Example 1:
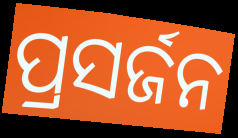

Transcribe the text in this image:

ପ୍ରସର୍ଜନ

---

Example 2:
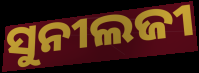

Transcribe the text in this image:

ସୁନୀଲଜୀ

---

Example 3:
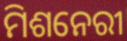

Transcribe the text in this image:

ମିଶନେରୀ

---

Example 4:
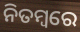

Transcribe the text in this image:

ନିତମ୍ବରେ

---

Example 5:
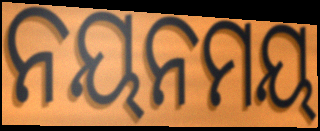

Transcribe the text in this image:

ନୟନମୟ